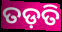
ତଡ଼ତି